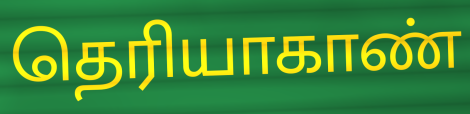
தெரியாகாண்